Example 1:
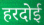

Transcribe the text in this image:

हरदोई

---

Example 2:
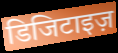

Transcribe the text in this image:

डिजिटाइज़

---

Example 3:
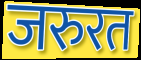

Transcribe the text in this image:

जरुरत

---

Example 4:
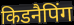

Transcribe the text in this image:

किडनैपिंग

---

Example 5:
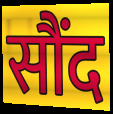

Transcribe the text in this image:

सौंद